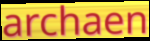
archaen